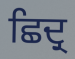
ਛਿਦ੍ਰ